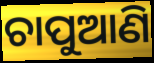
ଚାପୁଆଣି